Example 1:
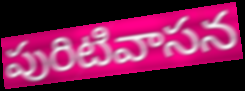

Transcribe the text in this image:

పురిటివాసన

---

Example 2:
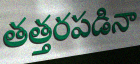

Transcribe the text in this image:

తత్తరపడినా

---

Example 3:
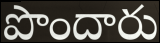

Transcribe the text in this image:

పొందారు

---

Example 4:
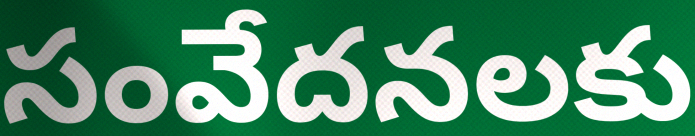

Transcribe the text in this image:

సంవేదనలకు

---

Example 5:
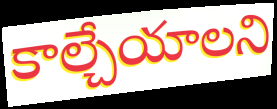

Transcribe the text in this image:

కాల్చేయాలని